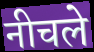
नीचले